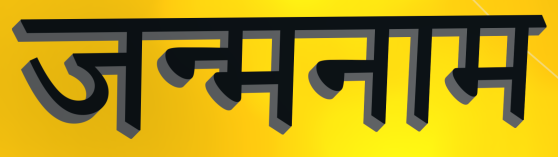
जन्मनाम